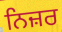
ਨਿਜ਼ਰ